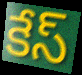
కేస్